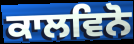
ਕਾਲਵਿਨੋ